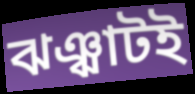
ঝঞ্ঝাটই